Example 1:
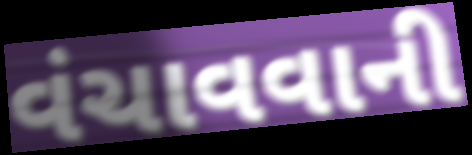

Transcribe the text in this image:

વંચાવવાની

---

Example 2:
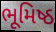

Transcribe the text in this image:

ભૂમિષ્ઠ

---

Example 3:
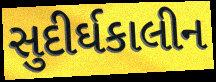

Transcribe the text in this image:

સુદીર્ઘકાલીન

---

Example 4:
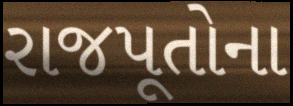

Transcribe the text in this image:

રાજપૂતોના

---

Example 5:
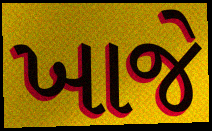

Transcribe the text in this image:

ખાજે